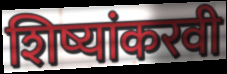
शिष्यांकरवी